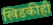
खिडकीही